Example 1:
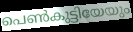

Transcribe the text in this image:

പെൺകുട്ടിയേയും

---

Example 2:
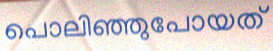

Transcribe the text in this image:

പൊലിഞ്ഞുപോയത്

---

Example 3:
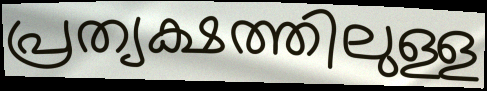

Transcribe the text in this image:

പ്രത്യക്ഷത്തിലുള്ള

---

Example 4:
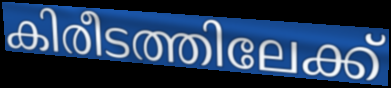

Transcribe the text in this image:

കിരീടത്തിലേക്ക്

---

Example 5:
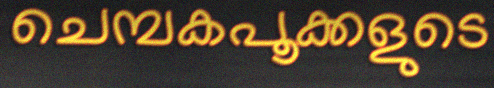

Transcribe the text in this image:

ചെമ്പകപൂക്കളുടെ